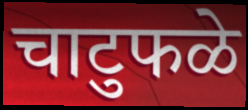
चाटुफळे